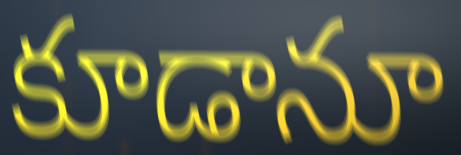
కూడానూ